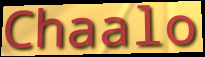
Chaalo